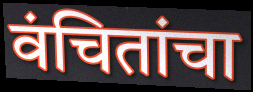
वंचितांचा